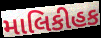
માલિકીહક